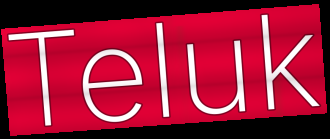
Teluk